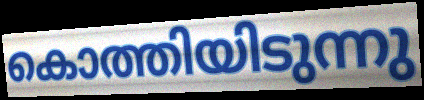
കൊത്തിയിടുന്നു